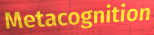
Metacognition